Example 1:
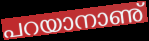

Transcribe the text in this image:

പറയാനാണു്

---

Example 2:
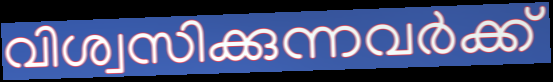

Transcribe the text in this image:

വിശ്വസിക്കുന്നവർക്ക്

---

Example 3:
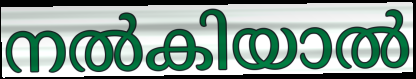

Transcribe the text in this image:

നൽകിയാൽ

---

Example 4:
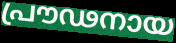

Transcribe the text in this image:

പ്രൗഢനായ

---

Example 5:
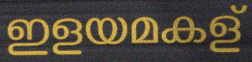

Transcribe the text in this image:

ഇളയമകള്